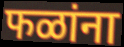
फळांना